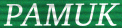
PAMUK